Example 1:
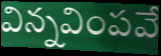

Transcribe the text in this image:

విన్నవింపవే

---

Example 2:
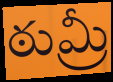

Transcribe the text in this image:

ఠుమ్రీ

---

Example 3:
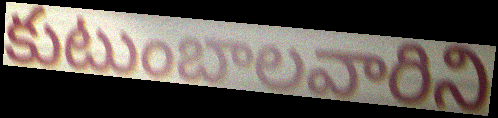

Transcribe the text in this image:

కుటుంబాలవారిని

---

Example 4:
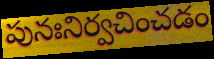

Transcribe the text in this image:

పునఃనిర్వచించడం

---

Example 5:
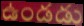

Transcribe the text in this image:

ఉండడు